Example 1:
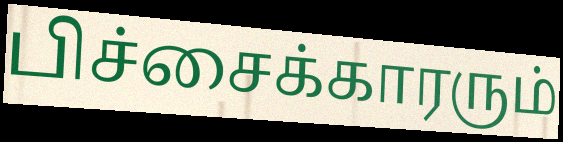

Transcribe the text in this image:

பிச்சைக்காரரும்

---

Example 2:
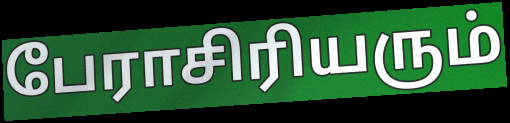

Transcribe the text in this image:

பேராசிரியரும்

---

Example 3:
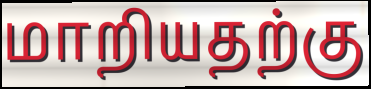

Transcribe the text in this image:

மாறியதற்கு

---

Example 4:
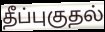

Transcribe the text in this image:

தீப்புகுதல்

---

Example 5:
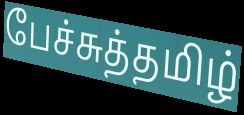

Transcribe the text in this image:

பேச்சுத்தமிழ்